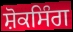
ਸ਼ੋਕਸਿੰਗ